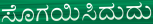
ಸೊಗಯಿಸಿದುದು